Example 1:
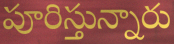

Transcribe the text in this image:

పూరిస్తున్నారు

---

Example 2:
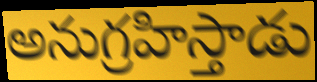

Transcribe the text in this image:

అనుగ్రహిస్తాడు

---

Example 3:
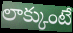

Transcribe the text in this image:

లాక్కుంటే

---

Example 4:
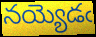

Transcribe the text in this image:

నయ్యెడఁ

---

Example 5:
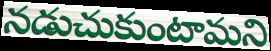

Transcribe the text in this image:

నడుచుకుంటామని